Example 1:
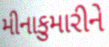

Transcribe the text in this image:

મીનાકુમારીને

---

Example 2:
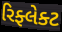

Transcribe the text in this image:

રિફ્લેક્ટ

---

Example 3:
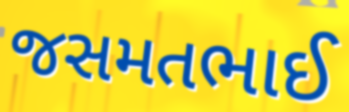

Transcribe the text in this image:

જસમતભાઈ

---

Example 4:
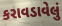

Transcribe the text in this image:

કરાવડાવેલું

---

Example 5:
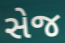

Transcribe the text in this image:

સેજ